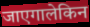
जाएगालेकिन